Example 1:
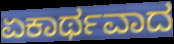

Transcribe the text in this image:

ಏಕಾರ್ಥವಾದ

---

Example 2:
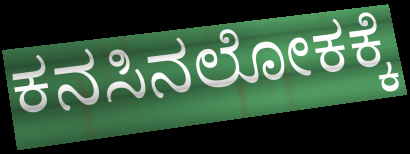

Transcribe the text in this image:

ಕನಸಿನಲೋಕಕ್ಕೆ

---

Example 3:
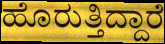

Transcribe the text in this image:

ಹೊರುತ್ತಿದ್ದಾರೆ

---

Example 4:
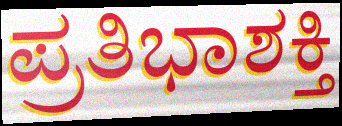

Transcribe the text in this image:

ಪ್ರತಿಭಾಶಕ್ತಿ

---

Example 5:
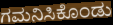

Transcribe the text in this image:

ಗಮನಿಸಿಕೊಂಡು